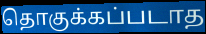
தொகுக்கப்படாத